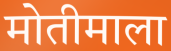
मोतीमाला